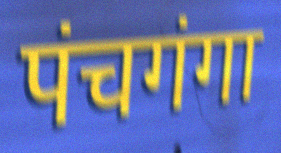
पंचगंगा